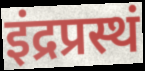
इंद्रप्रस्थं